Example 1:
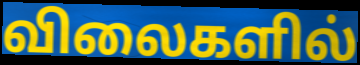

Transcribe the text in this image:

விலைகளில்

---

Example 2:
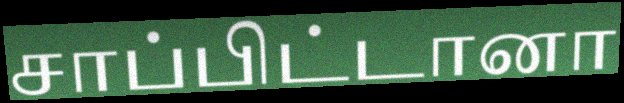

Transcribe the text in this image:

சாப்பிட்டானா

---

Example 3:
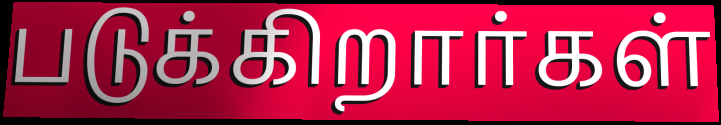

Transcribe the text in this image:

படுக்கிறார்கள்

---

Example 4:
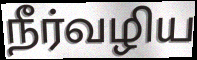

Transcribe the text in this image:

நீர்வழிய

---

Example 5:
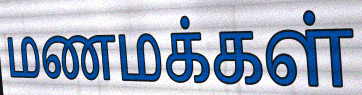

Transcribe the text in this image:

மணமக்கள்